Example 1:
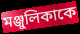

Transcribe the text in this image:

মঞ্জুলিকাকে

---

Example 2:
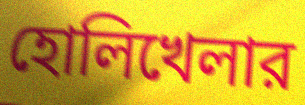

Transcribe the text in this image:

হোলিখেলার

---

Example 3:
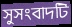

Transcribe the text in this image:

সুসংবাদটি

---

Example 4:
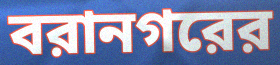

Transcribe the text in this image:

বরানগরের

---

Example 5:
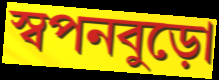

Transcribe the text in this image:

স্বপনবুড়ো